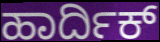
ಹಾರ್ದಿಕ್